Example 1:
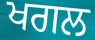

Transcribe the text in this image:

ਖਗਲ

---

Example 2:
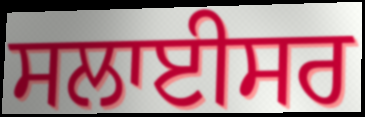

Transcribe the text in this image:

ਸਲਾਈਸਰ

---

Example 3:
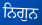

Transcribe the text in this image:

ਨਿਗੁਨ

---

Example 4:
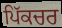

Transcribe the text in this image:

ਪਿੱਕਚਰ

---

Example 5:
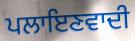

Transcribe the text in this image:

ਪਲਾਇਣਵਾਦੀ